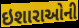
ઇશારાઓની